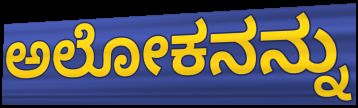
ಅಲೋಕನನ್ನು